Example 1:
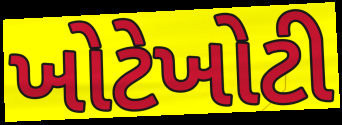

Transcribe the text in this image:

ખોટેખોટી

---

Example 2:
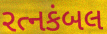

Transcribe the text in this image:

રત્નકંબલ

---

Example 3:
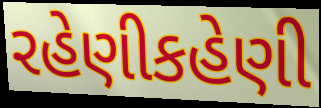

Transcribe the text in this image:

રહેણીકહેણી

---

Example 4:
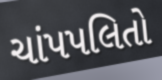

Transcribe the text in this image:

ચાંપપલિતો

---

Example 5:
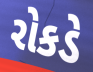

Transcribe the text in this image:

રોકડે